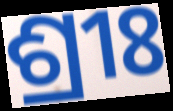
ଶ୍ରୀଃ